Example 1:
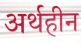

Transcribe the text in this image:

अर्थहीन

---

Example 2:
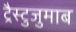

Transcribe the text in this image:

ट्रैस्टुजुमाब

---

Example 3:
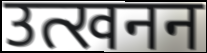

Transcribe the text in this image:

उत्खनन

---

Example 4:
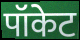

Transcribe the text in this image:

पॉकेट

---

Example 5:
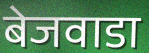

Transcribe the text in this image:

बेजवाडा